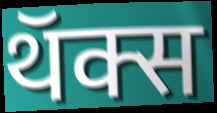
थॅक्स